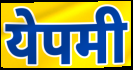
येपमी